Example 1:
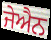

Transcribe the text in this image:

ਜੇਐਨ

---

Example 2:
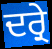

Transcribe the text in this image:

ਦਰ੍ਰੇ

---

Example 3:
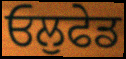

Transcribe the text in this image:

ਓਲੁਫੇਡ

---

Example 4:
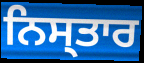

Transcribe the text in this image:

ਨਿਸ੍ਤਾਰ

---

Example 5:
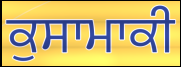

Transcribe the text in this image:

ਕੁਸਾਮਾਕੀ